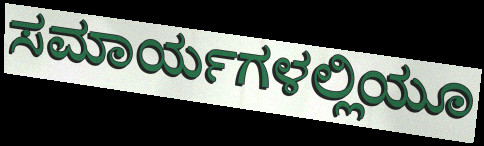
ಸಮಾರ್ಯಗಳಲ್ಲಿಯೂ